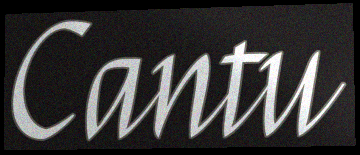
Cantu